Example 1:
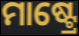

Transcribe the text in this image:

ମାଷ୍ଟ୍ରେ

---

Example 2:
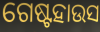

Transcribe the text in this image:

ଗେଷ୍ଟହାଉସ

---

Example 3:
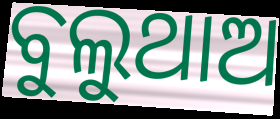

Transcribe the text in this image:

ବୁଲୁଥାଅ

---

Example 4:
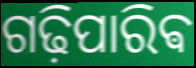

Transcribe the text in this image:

ଗଢ଼ିପାରିଵ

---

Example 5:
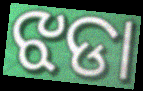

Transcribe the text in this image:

ଝଡା